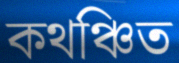
কথঞ্চিত